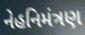
નેહનિમંત્રણ